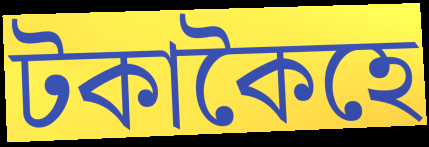
টকাকৈহে